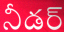
నీడర్